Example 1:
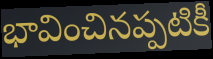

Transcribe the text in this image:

భావించినప్పటికీ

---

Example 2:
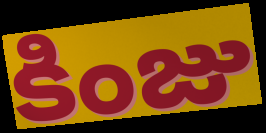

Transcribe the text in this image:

కింజు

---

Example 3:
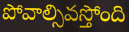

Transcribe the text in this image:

పోవాల్సివస్తోంది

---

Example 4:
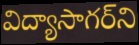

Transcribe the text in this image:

విద్యాసాగర్‌ని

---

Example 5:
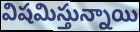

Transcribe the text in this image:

విషమిస్తున్నాయి